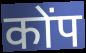
कोंप